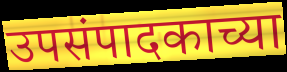
उपसंपादकाच्या